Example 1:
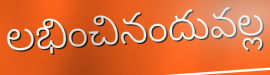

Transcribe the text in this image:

లభించినందువల్ల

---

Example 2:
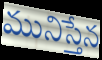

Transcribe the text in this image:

మునిస్తేన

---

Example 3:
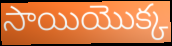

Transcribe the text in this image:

సాయియొక్క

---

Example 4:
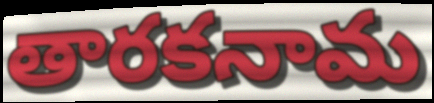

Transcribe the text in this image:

తారకనామ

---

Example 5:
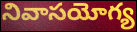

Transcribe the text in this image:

నివాసయోగ్య